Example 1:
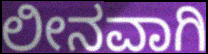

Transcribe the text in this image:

ಲೀನವಾಗಿ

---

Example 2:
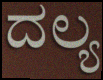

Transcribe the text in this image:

ದಲ್ಯ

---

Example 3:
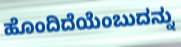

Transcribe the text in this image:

ಹೊಂದಿದೆಯೆಂಬುದನ್ನು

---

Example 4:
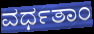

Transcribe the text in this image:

ವರ್ಧತಾಂ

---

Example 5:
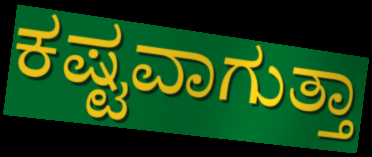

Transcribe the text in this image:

ಕಷ್ಟವಾಗುತ್ತಾ